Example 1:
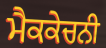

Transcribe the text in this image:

ਮੈਕਕੇਚਨੀ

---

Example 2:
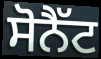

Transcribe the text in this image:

ਸੋਨੈੱਟ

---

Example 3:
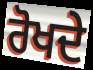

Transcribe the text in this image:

ਰੋਖਦੇ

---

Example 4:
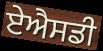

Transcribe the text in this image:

ਏਐਸਡੀ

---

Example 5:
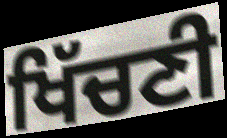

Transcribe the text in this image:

ਖਿੱਚਣੀ